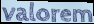
valorem